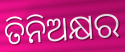
ତିନିଅକ୍ଷର